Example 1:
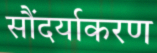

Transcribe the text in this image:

सौंदर्याकरण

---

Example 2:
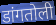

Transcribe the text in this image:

डांगतोली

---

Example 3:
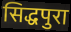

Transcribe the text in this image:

सिद्धपुरा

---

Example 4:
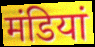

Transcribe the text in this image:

मंडियां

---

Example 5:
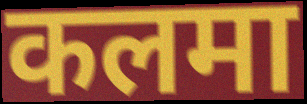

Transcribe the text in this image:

कलमा